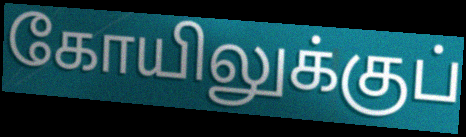
கோயிலுக்குப்